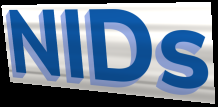
NIDs